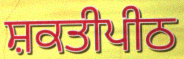
ਸ਼ਕਤੀਪੀਠ